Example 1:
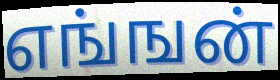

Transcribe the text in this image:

எங்ஙன்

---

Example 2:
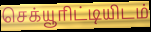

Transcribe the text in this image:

செக்யூரிட்டியிடம்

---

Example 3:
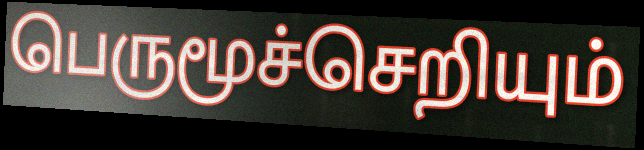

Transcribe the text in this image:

பெருமூச்செறியும்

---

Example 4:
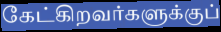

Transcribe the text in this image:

கேட்கிறவர்களுக்குப்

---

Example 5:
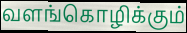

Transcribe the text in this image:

வளங்கொழிக்கும்